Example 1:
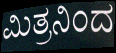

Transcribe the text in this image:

ಮಿತ್ರನಿಂದ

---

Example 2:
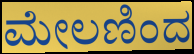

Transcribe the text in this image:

ಮೇಲಣಿಂದ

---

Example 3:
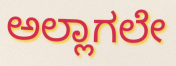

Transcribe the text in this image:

ಅಲ್ಲಾಗಲೇ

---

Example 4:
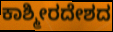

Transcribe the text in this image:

ಕಾಶ್ಮೀರದೇಶದ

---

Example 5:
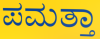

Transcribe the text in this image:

ಪಮತ್ತಾ